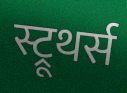
स्ट्रूथर्स